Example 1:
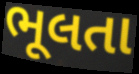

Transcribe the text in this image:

ભૂલતા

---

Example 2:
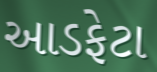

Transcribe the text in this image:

આડફેટા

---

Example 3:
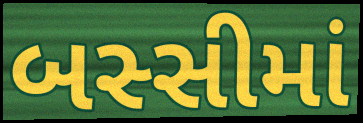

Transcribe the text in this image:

બસ્સીમાં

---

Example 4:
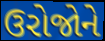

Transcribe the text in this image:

ઉરોજોને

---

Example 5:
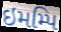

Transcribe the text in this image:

ઇમમ્પિ